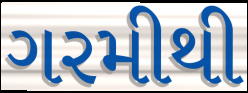
ગરમીથી